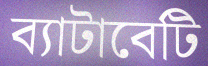
ব্যাটাবেটি